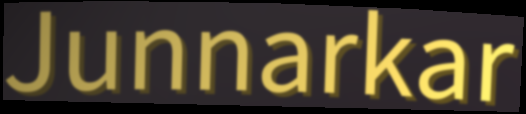
Junnarkar